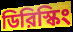
ডিরিস্কিং